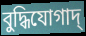
বুদ্ধিযোগাদ্